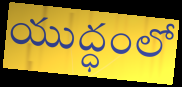
యుద్ధంలో